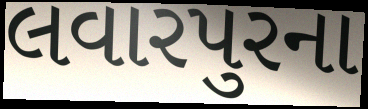
લવારપુરના